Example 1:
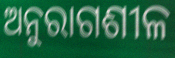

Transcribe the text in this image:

ଅନୁରାଗଶୀଳ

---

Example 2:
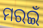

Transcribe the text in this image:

ମରଇଁ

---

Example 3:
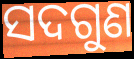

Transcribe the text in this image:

ସଦଗୁଣ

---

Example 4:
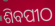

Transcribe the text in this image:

ଶିବପୀଠ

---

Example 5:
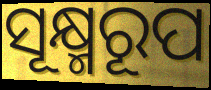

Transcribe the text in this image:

ସୂକ୍ଷ୍ମରୂପ